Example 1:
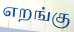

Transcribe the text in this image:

எறங்கு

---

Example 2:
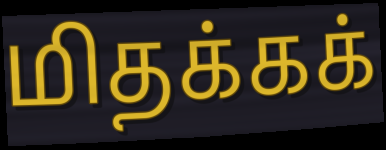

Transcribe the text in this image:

மிதக்கக்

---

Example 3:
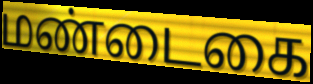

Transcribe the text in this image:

மண்டைகை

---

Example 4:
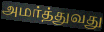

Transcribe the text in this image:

அமர்த்துவது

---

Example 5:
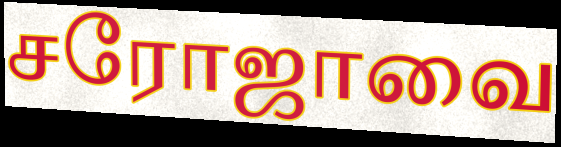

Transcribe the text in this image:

சரோஜாவை